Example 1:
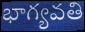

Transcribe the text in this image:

భాగ్యవతి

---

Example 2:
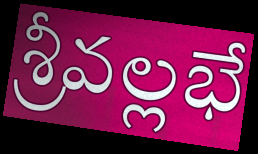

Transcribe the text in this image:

శ్రీవల్లభే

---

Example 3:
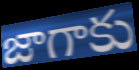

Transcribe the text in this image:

జాగాకు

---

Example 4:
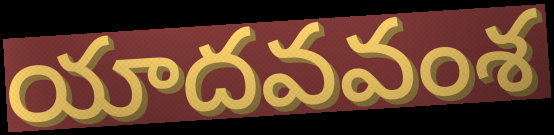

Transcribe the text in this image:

యాదవవంశ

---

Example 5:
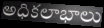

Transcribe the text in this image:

అధికలాభాలు